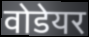
वोडेयर